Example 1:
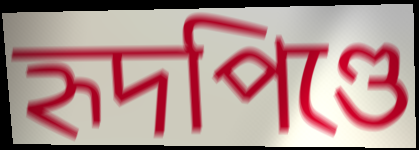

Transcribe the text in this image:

হৃদপিণ্ডে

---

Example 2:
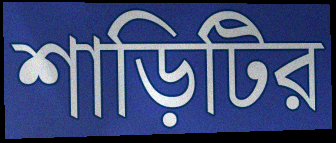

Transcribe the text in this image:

শাড়িটির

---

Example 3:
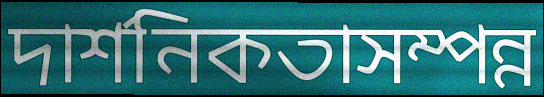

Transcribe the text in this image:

দার্শনিকতাসম্পন্ন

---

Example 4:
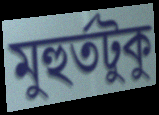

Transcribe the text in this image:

মুহুর্তটুকু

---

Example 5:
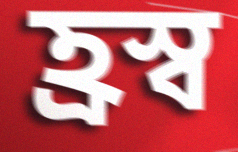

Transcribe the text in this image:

হ্রস্ব